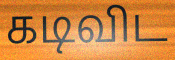
கடிவிட